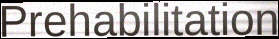
Prehabilitation